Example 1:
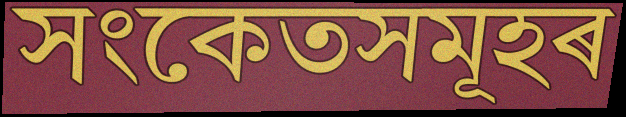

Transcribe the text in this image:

সংকেতসমূহৰ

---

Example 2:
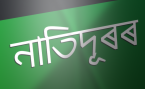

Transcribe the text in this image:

নাতিদূৰৰ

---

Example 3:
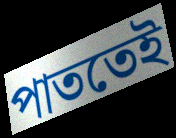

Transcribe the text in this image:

পাততেই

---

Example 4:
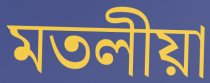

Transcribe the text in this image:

মতলীয়া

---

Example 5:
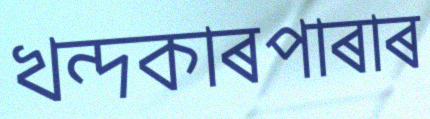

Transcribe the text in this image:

খন্দকাৰপাৰাৰ